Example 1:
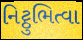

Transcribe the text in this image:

નિટ્ઠુભિત્વા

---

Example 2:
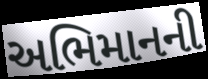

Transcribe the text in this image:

અભિમાનની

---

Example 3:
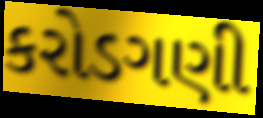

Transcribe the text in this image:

કરોડગણી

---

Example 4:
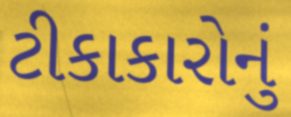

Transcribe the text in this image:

ટીકાકારોનું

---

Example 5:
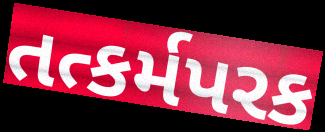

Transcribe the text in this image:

તત્કર્મપરક